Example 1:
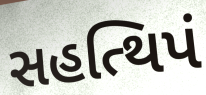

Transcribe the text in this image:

સહત્થિપં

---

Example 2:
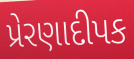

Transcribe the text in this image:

પ્રેરણાદીપક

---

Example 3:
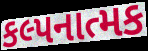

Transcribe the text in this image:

કલ્પનાત્મક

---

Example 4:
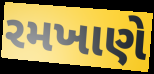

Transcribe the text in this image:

રમખાણે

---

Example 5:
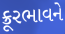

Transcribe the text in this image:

ક્રૂરભાવને